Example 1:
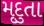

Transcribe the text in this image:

મૃદુતા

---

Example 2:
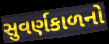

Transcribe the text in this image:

સુવર્ણકાળનો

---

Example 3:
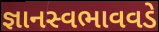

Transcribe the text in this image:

જ્ઞાનસ્વભાવવડે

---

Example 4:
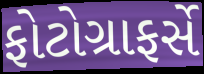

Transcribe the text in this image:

ફોટોગ્રાફર્સે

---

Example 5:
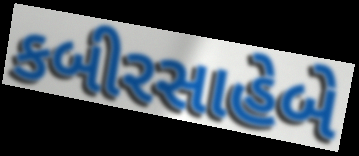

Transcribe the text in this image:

કબીરસાહેબે